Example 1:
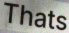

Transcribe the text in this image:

Thats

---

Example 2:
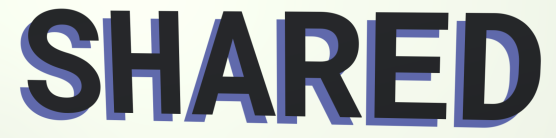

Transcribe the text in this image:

SHARED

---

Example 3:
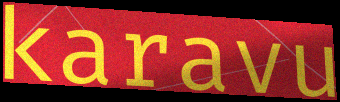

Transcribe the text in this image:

karavu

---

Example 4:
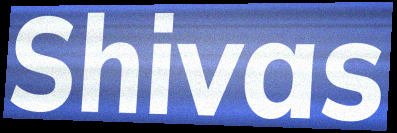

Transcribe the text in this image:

Shivas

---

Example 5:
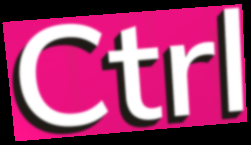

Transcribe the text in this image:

Ctrl